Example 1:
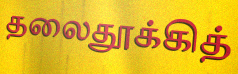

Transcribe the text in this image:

தலைதூக்கித்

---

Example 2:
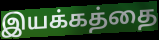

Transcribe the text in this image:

இயக்கத்தை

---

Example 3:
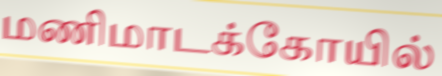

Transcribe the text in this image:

மணிமாடக்கோயில்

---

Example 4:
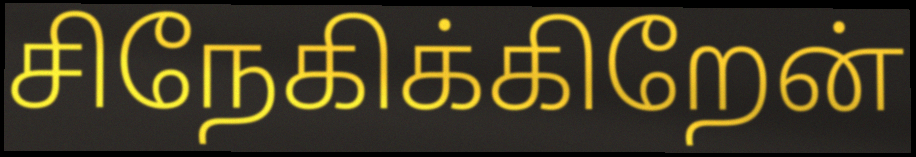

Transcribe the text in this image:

சிநேகிக்கிறேன்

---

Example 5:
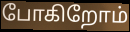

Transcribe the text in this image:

போகிறோம்